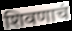
शिवणाचं